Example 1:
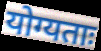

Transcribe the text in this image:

योग्यताः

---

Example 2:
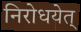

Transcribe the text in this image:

निरोधयेत्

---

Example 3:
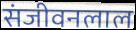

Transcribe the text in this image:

संजीवनलाल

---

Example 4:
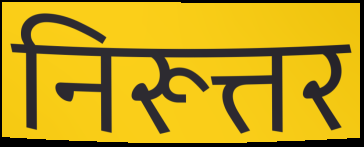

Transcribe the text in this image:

निरूत्तर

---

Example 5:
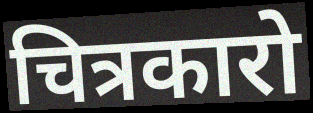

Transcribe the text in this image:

चित्रकारो